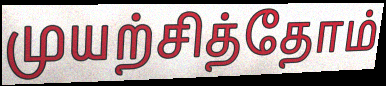
முயற்சித்தோம்